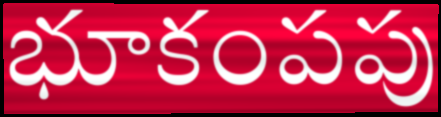
భూకంపపు